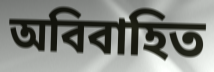
অবিবাহিত